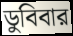
ডুবিবার